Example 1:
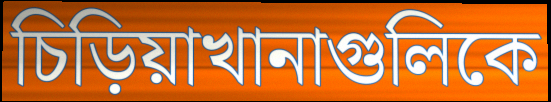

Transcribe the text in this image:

চিড়িয়াখানাগুলিকে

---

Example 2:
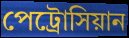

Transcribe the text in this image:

পেট্রোসিয়ান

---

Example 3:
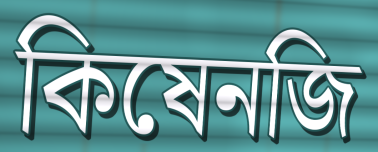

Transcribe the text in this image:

কিষেনজি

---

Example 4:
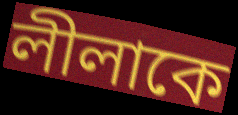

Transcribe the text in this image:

লীলাকে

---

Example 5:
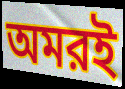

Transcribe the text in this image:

অমরই